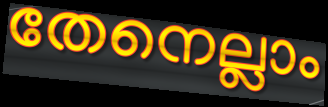
തേനെല്ലാം